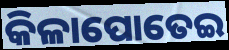
କିଳାପୋତେଇ